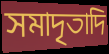
সমাদৃতাদি